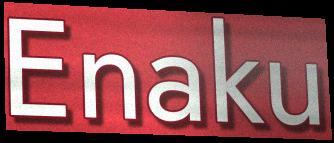
Enaku